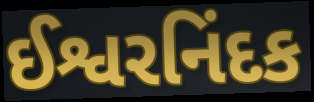
ઈશ્વરનિંદક